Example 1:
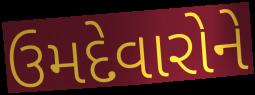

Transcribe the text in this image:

ઉમદેવારોને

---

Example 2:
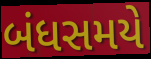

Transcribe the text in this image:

બંધસમયે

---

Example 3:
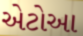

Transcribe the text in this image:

એટોઆ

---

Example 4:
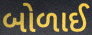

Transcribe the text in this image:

બોળાઈ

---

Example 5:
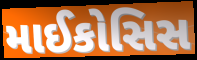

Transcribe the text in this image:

માઈકોસિસ